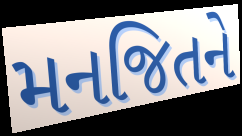
મનજિતને